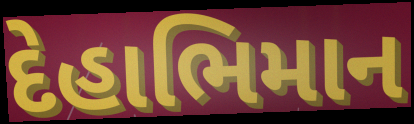
દેહાભિમાન